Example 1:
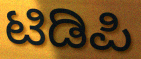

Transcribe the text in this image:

ಟಿಡಿಪಿ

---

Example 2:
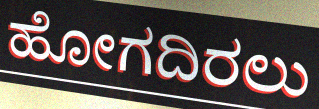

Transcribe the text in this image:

ಹೋಗದಿರಲು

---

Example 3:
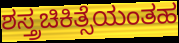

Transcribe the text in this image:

ಶಸ್ತ್ರಚಿಕಿತ್ಸೆಯಂತಹ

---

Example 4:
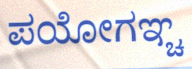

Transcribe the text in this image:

ಪಯೋಗಞ್ಚ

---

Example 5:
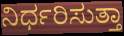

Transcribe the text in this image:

ನಿರ್ಧರಿಸುತ್ತಾ